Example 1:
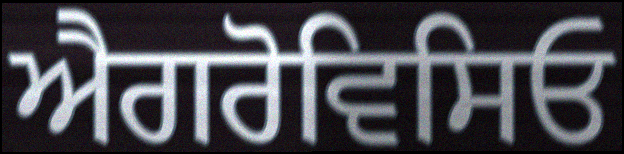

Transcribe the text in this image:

ਐਗਰੋਵਿਸਿਓ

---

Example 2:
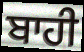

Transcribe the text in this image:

ਬਾਹੀ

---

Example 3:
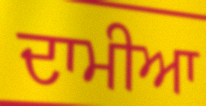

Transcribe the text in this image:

ਦਾਮੀਆ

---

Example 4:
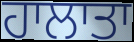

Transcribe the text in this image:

ਹਾਲਾਤਾ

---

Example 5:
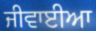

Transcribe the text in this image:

ਜੀਵਾਈਆ